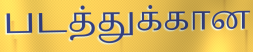
படத்துக்கான